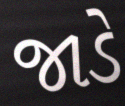
જાડે